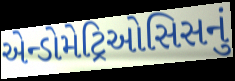
એન્ડોમેટ્રિઓસિસનું